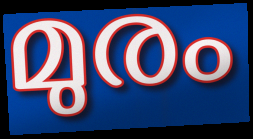
മുരം